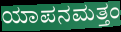
ಯಾಪನಮತ್ತಂ